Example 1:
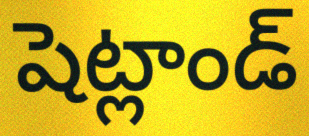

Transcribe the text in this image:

షెట్లాండ్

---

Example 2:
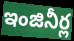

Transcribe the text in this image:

ఇంజినీర్ల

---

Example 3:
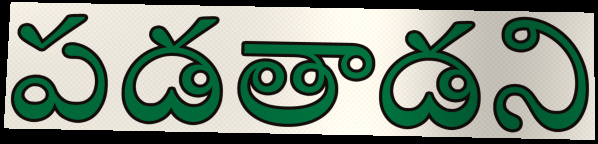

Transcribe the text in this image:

పడతాడని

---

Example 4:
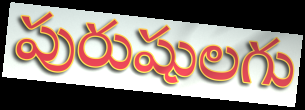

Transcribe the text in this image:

పురుషులగు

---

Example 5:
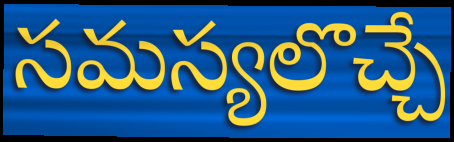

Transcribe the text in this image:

సమస్యలొచ్చే